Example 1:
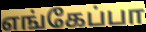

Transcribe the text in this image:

எங்கேப்பா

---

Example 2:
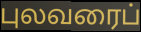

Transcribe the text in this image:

புலவரைப்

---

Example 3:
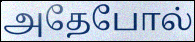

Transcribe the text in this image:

அதேபோல்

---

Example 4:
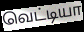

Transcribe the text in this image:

வெட்டியா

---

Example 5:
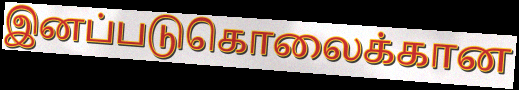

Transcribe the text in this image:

இனப்படுகொலைக்கான